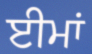
ਈਮਾਂ